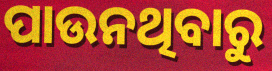
ପାଉନଥିବାରୁ